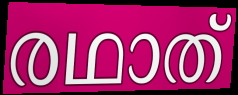
രഥാത്